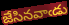
జేసినవాఁడు